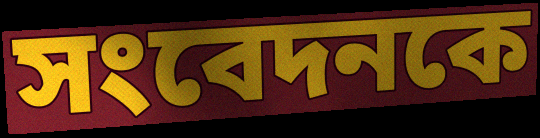
সংবেদনকে